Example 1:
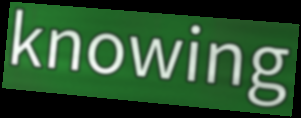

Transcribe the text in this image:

knowing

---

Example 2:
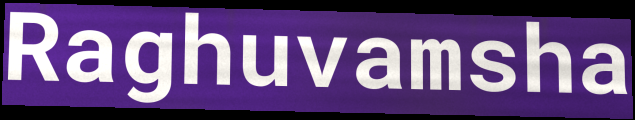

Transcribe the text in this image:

Raghuvamsha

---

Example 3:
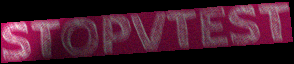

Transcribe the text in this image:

STOPVTEST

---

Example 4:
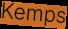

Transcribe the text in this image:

Kemps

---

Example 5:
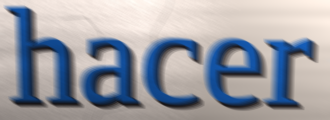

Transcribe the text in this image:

hacer